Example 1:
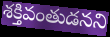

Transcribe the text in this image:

శక్తివంతుడనని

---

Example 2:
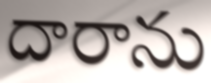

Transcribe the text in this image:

దారాను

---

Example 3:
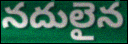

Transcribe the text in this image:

నదులైన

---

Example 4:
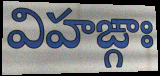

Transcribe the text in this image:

విహఙ్గాః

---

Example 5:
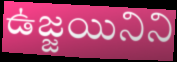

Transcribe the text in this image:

ఉజ్జయినిని